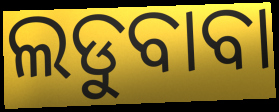
ଲଡୁବାବା